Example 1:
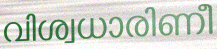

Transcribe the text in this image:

വിശ്വധാരിണീ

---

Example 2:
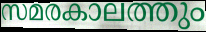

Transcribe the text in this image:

സമരകാലത്തും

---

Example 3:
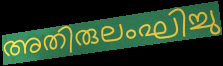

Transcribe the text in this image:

അതിരുലംഘിച്ചു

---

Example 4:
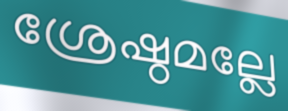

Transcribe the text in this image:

ശ്രേഷ്ഠമല്ലേ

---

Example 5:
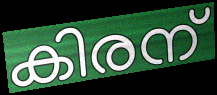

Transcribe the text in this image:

കിരന്